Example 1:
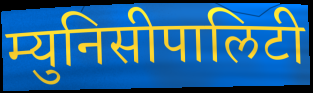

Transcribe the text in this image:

म्युनिसीपालिटी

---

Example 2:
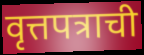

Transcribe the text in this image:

वृत्तपत्राची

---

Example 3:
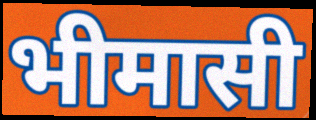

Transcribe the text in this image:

भीमासी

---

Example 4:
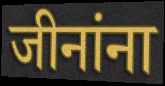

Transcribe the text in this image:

जीनांना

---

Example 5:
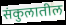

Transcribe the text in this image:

संकुलातील